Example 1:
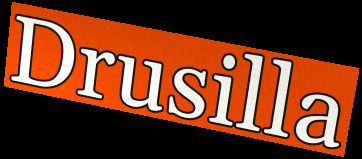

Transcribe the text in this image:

Drusilla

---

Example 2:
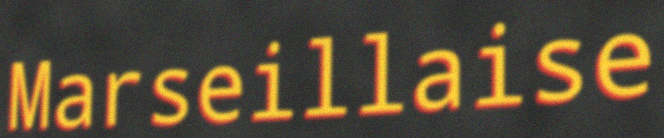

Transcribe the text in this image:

Marseillaise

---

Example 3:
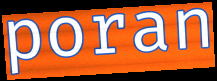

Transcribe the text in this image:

poran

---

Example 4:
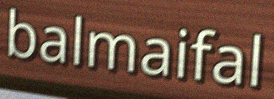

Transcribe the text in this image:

balmaifal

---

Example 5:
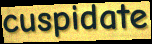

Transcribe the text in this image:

cuspidate